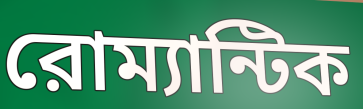
রোম্যান্টিক